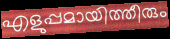
എളുപ്പമായിത്തീരും